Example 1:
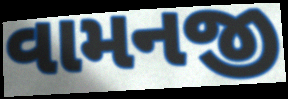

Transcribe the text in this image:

વામનજી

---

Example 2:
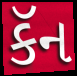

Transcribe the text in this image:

કૅન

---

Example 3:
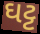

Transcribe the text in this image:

ઘટ્ટ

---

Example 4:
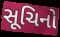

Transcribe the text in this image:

સૂચિનો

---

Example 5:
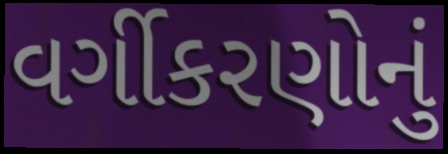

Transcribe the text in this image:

વર્ગીકરણોનું